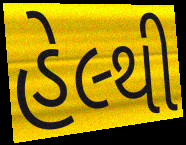
હેલ્થી